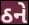
ઠને